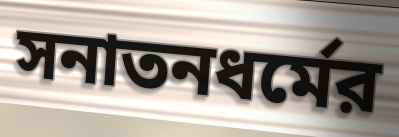
সনাতনধর্মের